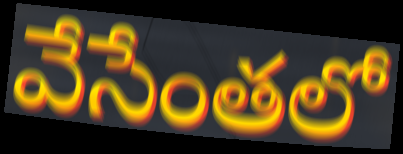
వేసేంతలో